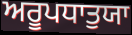
ਅਰੂਪਧਾਤੁਯਾ